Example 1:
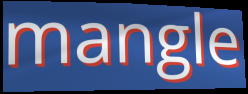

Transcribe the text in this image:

mangle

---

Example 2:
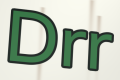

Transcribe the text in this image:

Drr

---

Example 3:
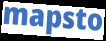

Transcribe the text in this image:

mapsto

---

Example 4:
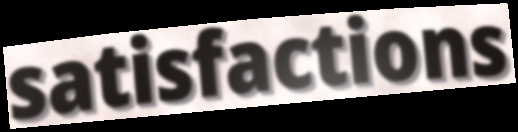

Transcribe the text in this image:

satisfactions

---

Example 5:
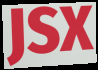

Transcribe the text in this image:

JSX